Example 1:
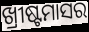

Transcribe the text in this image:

ଖ୍ରୀଷ୍ଟମାସର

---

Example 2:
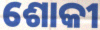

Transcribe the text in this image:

ଶୋକୀ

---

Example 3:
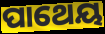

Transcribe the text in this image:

ପାଥେୟ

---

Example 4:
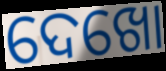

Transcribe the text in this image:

ଦେଖୋ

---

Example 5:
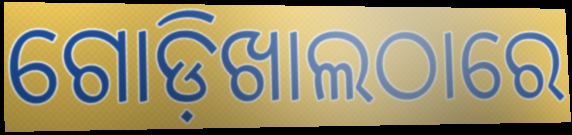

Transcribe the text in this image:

ଗୋଡ଼ିଖାଲଠାରେ